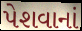
પેશવાનાં